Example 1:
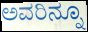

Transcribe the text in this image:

ಅವರಿನ್ನೂ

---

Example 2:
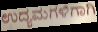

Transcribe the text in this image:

ಉದ್ಯಮಗಳಿಗಾಗಿ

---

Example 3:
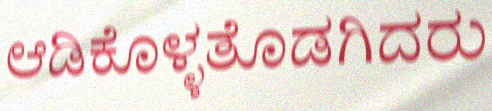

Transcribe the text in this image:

ಆಡಿಕೊಳ್ಳತೊಡಗಿದರು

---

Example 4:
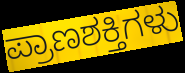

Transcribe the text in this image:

ಪ್ರಾಣಶಕ್ತಿಗಳು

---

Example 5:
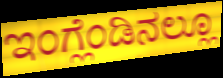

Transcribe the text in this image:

ಇಂಗ್ಲೆಂಡಿನಲ್ಲೂ